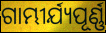
ଗାମ୍ଭୀର୍ଯ୍ୟପୂର୍ଣ୍ଣ